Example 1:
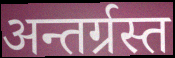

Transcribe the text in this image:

अन्तर्ग्रस्त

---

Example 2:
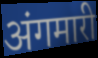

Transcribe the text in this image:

अंगमारी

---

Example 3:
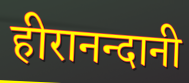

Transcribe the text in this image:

हीरानन्दानी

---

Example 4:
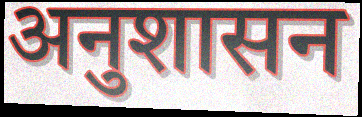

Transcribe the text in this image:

अनुशासन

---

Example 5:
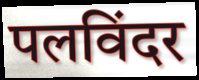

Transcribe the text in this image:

पलविंदर